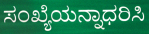
ಸಂಖ್ಯೆಯನ್ನಾಧರಿಸಿ